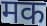
मक